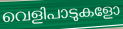
വെളിപാടുകളോ